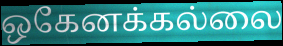
ஒகேனக்கல்லை